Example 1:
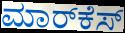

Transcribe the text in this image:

ಮಾರ್‌ಕೆಸ್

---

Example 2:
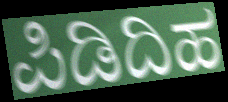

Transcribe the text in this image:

ಪಿಡಿದಿಹ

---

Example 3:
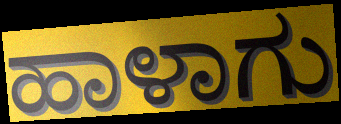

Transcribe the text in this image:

ಹಾಳಾಗು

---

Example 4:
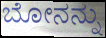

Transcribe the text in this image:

ಬೋನನ್ನು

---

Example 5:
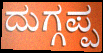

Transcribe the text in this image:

ದುಗ್ಗಪ್ಪ